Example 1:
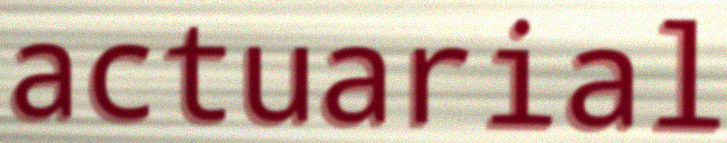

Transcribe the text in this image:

actuarial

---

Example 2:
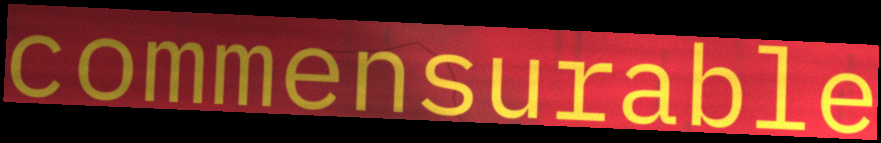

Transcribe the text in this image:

commensurable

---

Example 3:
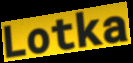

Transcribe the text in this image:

Lotka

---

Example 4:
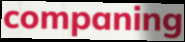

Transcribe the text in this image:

companing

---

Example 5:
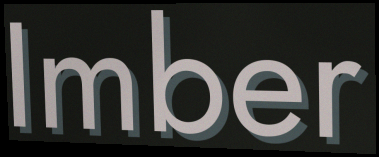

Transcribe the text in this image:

Imber